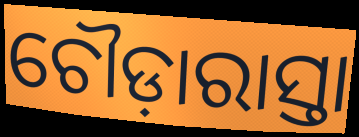
ଚୌଡ଼ାରାସ୍ତା